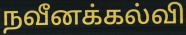
நவீனக்கல்வி